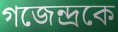
গজেন্দ্রকে